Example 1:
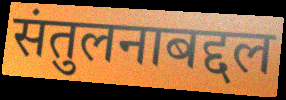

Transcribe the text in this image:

संतुलनाबद्दल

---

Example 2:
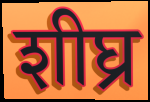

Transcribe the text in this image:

शीघ्र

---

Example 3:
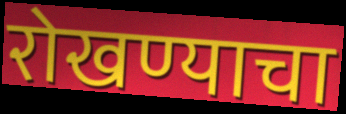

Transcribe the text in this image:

रोखण्याचा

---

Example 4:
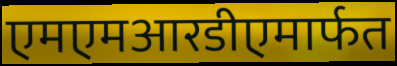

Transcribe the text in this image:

एमएमआरडीएमार्फत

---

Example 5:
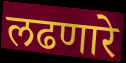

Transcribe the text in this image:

लढणारे